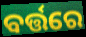
ବର୍ତ୍ତରେ